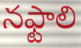
నఫ్టాలి